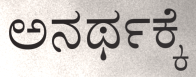
ಅನರ್ಥಕ್ಕೆ